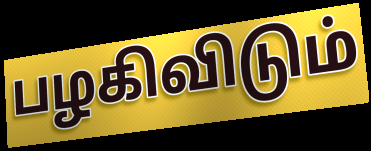
பழகிவிடும்